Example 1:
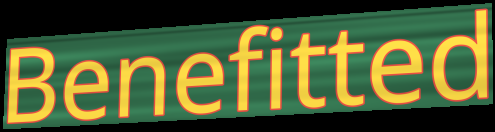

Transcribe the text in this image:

Benefitted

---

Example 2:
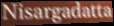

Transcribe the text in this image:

Nisargadatta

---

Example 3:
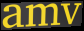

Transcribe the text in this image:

amv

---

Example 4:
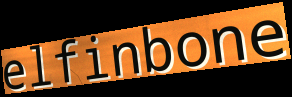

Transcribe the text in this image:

elfinbone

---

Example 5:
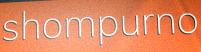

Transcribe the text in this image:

shompurno